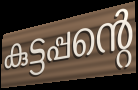
കുട്ടപ്പന്റെ